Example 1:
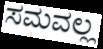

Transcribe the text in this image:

ಸಮವಲ್ಲ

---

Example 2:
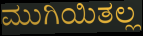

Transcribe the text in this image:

ಮುಗಿಯಿತಲ್ಲ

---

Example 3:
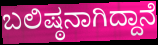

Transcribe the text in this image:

ಬಲಿಷ್ಠನಾಗಿದ್ದಾನೆ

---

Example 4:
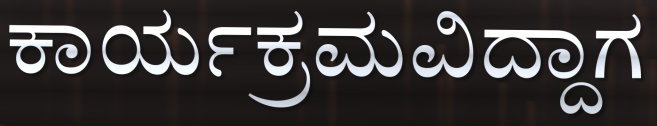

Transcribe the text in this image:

ಕಾರ್ಯಕ್ರಮವಿದ್ದಾಗ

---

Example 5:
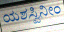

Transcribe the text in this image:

ಯಶಸ್ವಿನೀಂ